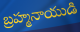
బ్రహ్మనాయుడి